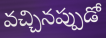
వచ్చినప్పుడో